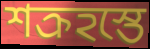
শক্রহস্তে